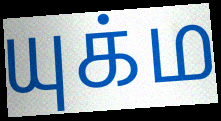
யுக்ம